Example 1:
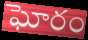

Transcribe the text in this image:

ఘోరం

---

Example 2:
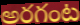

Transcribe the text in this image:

అరగంట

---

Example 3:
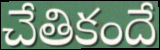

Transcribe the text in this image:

చేతికందే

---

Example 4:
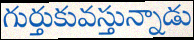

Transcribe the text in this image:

గుర్తుకువస్తున్నాడు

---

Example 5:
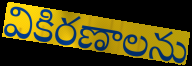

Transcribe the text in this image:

వికిరణాలను